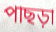
পাছড়া